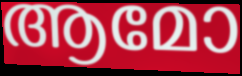
ആമോ